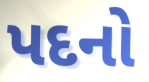
પદનો